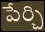
పేర్చి